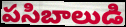
పసిబాలుడి